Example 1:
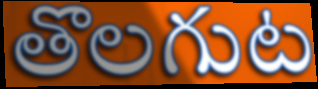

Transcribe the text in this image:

తొలగుట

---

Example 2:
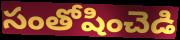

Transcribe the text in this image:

సంతోషించెడి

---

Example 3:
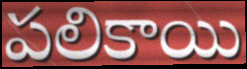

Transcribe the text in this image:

పలికాయి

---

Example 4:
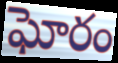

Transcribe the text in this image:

ఘోరం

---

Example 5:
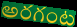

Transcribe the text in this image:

అరగంట